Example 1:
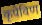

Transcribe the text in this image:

कृपेविण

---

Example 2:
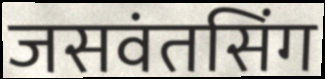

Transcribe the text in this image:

जसवंतसिंग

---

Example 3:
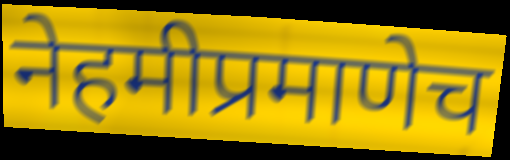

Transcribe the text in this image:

नेहमीप्रमाणेच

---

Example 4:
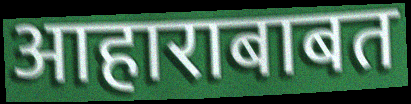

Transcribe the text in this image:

आहाराबाबत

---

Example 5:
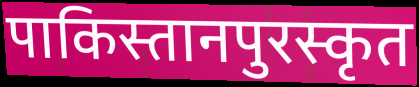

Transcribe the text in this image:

पाकिस्तानपुरस्कृत